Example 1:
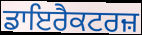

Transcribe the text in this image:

ਡਾਇਰੈਕਟਰਜ਼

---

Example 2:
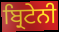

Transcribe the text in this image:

ਬ੍ਰਿਟੇਨੀ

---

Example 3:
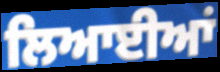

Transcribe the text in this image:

ਲਿਆਈਆਂ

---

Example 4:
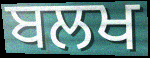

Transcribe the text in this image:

ਬਲਖ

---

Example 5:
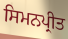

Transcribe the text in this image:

ਸਿਮਨਪ੍ਰੀਤ